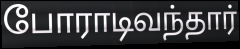
போராடிவந்தார்